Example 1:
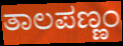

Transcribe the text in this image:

ತಾಲಪಣ್ಣಂ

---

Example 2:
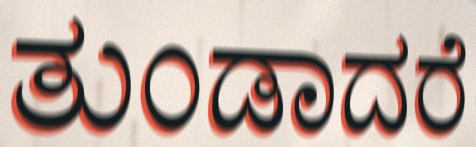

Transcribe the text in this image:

ತುಂಡಾದರೆ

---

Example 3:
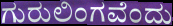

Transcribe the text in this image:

ಗುರುಲಿಂಗವೆಂದು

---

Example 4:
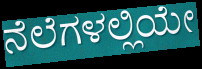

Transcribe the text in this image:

ನೆಲೆಗಳಲ್ಲಿಯೇ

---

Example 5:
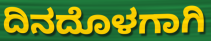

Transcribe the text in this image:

ದಿನದೊಳಗಾಗಿ